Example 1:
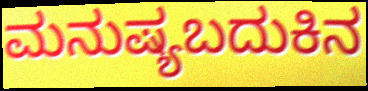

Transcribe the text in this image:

ಮನುಷ್ಯಬದುಕಿನ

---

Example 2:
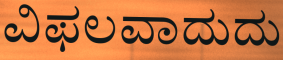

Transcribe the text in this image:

ವಿಫಲವಾದುದು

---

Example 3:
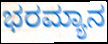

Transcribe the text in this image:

ಭರಮ್ಯಾನ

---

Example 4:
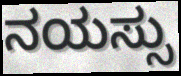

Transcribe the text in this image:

ನಯಸ್ಸು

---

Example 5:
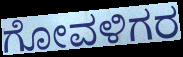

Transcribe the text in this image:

ಗೋವಳಿಗರ